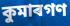
কুমাৰগণ